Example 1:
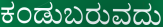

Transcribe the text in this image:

ಕಂಡುಬರುವದು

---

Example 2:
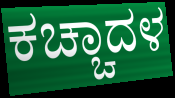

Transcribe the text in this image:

ಕಚ್ಚಾದಳ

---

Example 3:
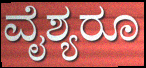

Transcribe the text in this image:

ವೈಶ್ಯರೂ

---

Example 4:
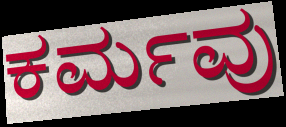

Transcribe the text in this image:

ಕರ್ಮವು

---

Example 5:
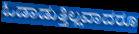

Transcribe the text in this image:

ಓಡಾಡುತ್ತಿಲ್ಲವಾದರೂ